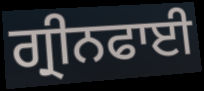
ਗ੍ਰੀਨਫਾਈ